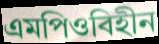
এমপিওবিহীন